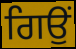
ਗਿਉਂ